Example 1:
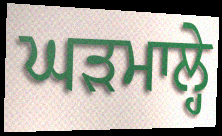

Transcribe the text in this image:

ਘੜਮਾਲ੍ਹੇ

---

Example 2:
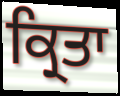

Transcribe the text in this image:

ਕ੍ਰਿਤਾ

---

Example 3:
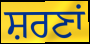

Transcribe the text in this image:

ਸ਼ਰਣਾਂ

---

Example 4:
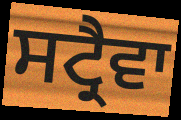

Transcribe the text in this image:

ਸਟ੍ਰੈਵਾ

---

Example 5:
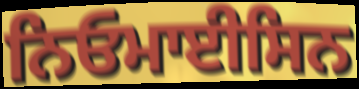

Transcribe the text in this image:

ਨਿਓਮਾਈਸਿਨ